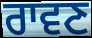
ਰਾਵਣ